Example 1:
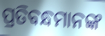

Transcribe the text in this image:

ପ୍ରତିବନ୍ଧମାନଙ୍କ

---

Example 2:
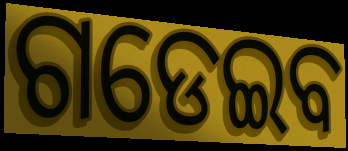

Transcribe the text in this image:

ଗଡେଇବ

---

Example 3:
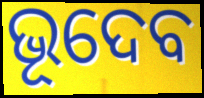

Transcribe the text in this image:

ଭୂଦେବ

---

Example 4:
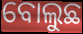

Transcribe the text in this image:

ବୋଲୁଛ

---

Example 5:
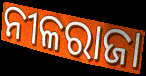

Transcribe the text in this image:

ନୀଳରାଜା